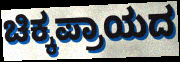
ಚಿಕ್ಕಪ್ರಾಯದ